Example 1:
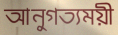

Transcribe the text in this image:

আনুগত্যময়ী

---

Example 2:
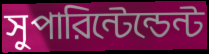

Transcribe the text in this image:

সুপারিন্টেন্ডেন্ট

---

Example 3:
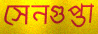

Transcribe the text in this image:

সেনগুপ্তা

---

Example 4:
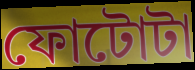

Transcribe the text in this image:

ফোটোটা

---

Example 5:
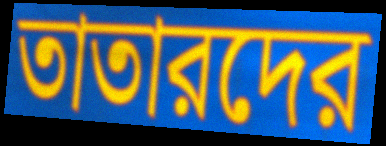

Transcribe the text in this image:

তাতারদের